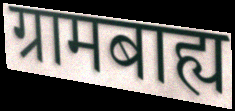
ग्रामबाह्य